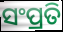
ସଂପ୍ରତି